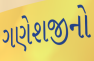
ગણેશજીનો